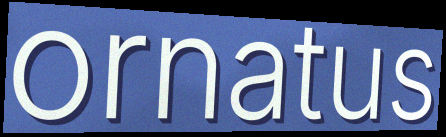
ornatus